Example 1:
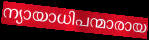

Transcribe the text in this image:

ന്യായാധിപന്മാരായ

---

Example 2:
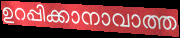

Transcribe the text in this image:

ഉറപ്പിക്കാനാവാത്ത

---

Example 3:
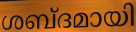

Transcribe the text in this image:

ശബ്ദമായി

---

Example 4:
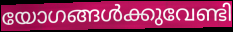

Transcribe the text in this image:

യോഗങ്ങൾക്കുവേണ്ടി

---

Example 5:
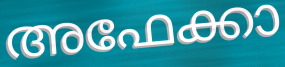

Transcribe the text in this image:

അഫേക്കാ